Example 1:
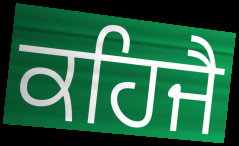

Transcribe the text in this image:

ਕਹਿਜੈ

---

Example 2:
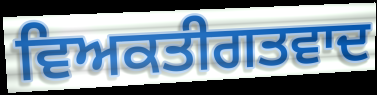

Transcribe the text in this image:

ਵਿਅਕਤੀਗਤਵਾਦ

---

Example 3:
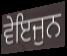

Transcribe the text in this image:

ਵੇਇਜੁਨ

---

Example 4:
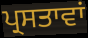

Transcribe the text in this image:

ਪ੍ਰਸਤਾਵਾਂ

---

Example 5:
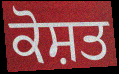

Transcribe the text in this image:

ਕੋਸ਼ਤ